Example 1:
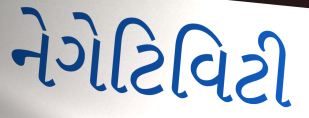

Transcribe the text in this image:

નેગેટિવિટી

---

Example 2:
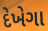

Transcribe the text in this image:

દેખેગા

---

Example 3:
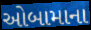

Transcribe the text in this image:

ઓબામાના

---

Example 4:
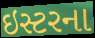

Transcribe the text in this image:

ઇસ્ટરના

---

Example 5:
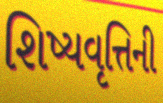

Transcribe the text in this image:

શિષ્યવૃત્તિની